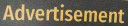
Advertisement